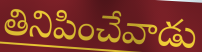
తినిపించేవాడు